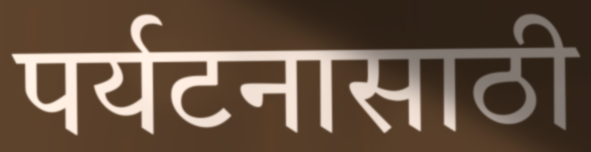
पर्यटनासाठी